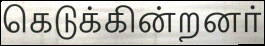
கெடுக்கின்றனர்